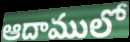
ఆదాములో